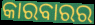
କାରବାରର